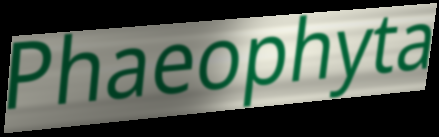
Phaeophyta